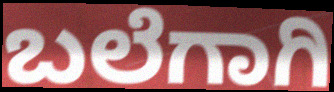
ಬಲೆಗಾಗಿ